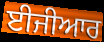
ਈਜੀਆਰ